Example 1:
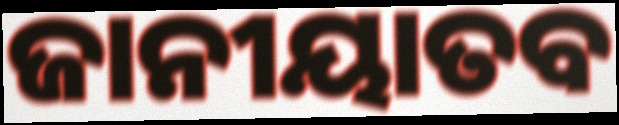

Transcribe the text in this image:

ଜାନୀୟାତବ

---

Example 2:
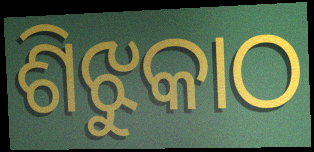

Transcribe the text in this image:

ଶିଝୁକାଠ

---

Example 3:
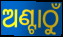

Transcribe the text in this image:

ଅଣ୍ଟାଠୁଁ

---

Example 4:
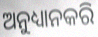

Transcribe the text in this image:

ଅନୁଧ୍ୟାନକରି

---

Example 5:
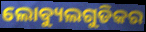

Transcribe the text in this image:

ଲୋବ୍ୟୁଲଗୁଡିକର